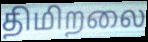
திமிறலை